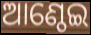
ଆଣ୍ଠେଇ